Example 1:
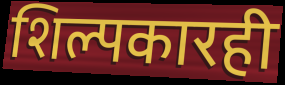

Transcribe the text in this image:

शिल्पकारही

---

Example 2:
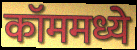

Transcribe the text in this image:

कॉममध्ये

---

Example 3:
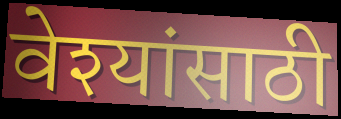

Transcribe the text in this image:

वेश्यांसाठी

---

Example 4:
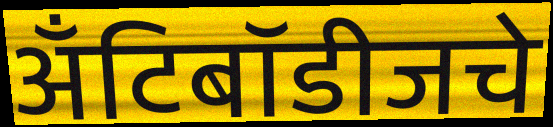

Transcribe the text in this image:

अँटिबॉडीजचे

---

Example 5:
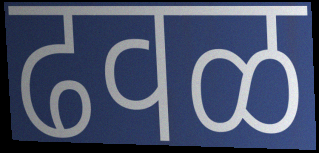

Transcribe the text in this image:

ढवळ